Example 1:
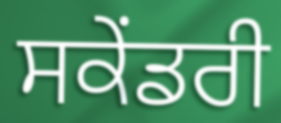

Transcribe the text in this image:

ਸਕੇਂਡਰੀ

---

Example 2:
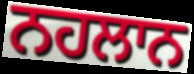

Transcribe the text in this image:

ਨਹਲਾਨ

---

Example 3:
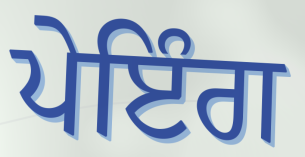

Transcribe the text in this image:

ਪੇਇੰਗ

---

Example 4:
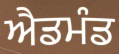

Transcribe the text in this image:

ਐਡਮੰਡ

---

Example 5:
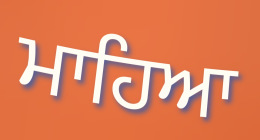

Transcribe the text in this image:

ਮਾਹਿਆ